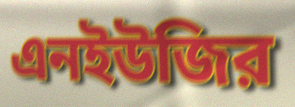
এনইউজির